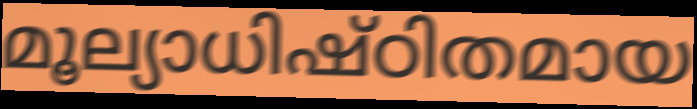
മൂല്യാധിഷ്ഠിതമായ